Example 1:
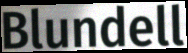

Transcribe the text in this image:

Blundell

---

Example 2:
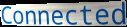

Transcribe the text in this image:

Connected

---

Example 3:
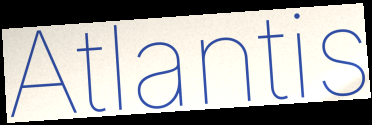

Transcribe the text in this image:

Atlantis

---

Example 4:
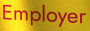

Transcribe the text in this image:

Employer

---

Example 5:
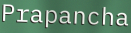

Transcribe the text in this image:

Prapancha